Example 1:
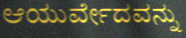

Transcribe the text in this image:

ಆಯುರ್ವೇದವನ್ನು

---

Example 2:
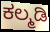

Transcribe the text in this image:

ಕಲ್ಮಡಿ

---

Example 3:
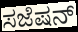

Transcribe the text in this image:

ಸಜೆಷನ್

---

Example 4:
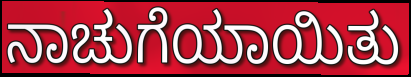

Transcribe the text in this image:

ನಾಚುಗೆಯಾಯಿತು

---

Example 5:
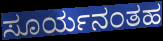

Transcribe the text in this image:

ಸೂರ್ಯನಂತಹ